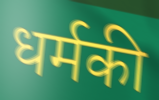
धर्मकी